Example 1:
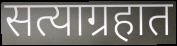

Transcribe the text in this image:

सत्याग्रहात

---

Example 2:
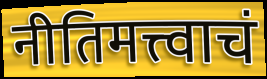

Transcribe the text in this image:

नीतिमत्त्वाचं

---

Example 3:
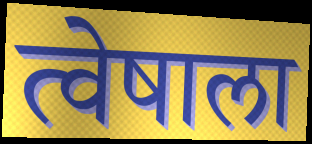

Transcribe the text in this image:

त्वेषाला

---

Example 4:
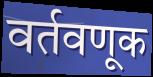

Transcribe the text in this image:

वर्तवणूक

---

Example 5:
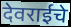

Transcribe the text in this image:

देवराईचे